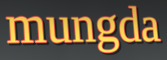
mungda